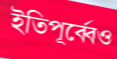
ইতিপূর্ব্বেও